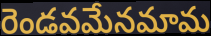
రెండవమేనమామ